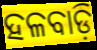
ହଳବାଡ଼ି